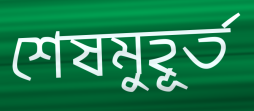
শেষমুহূর্ত